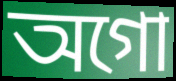
অগো